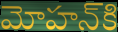
మోహన్‌కి